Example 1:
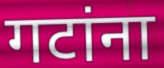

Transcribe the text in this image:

गटांना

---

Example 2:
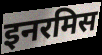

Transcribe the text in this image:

इनरमिस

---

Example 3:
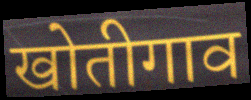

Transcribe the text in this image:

खोतीगाव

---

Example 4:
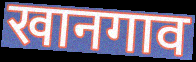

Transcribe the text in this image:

खानगाव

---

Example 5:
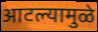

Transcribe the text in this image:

आटल्यामुळे